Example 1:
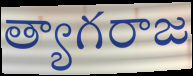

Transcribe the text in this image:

త్యాగరాజ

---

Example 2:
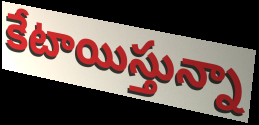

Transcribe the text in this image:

కేటాయిస్తున్నా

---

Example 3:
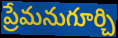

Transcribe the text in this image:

ప్రేమనుగూర్చి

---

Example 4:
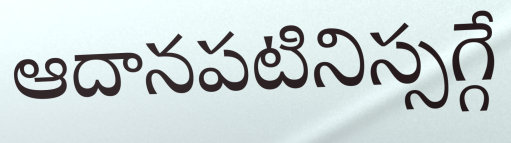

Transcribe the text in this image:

ఆదానపటినిస్సగ్గే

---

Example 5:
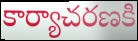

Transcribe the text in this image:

కార్యాచరణకి